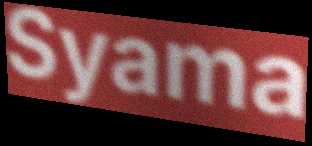
Syama